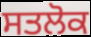
ਸਤਲੋਕ